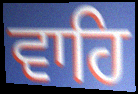
ਵਾਹਿ